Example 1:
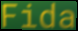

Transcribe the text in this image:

Fida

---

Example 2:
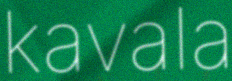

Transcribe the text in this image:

kavala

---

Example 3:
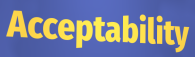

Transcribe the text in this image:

Acceptability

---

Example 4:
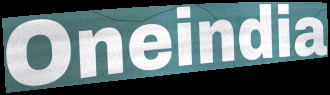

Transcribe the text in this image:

Oneindia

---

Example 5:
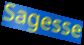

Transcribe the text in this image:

Sagesse